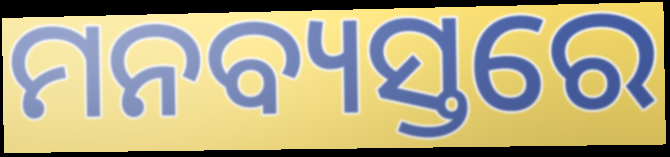
ମନବ୍ୟସ୍ତରେ